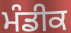
ਮੰਡੀਕ